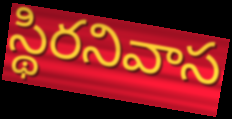
స్థిరనివాస